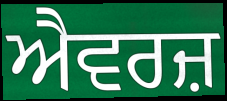
ਐਵਰਜ਼